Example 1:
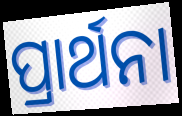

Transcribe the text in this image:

ପ୍ରାର୍ଥନା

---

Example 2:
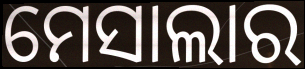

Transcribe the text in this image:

ମେସାଲାର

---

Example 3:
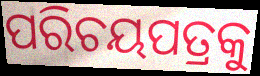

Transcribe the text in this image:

ପରିଚୟପତ୍ରକୁ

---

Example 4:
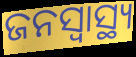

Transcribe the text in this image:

ଜନସ୍ବାସ୍ଥ୍ୟ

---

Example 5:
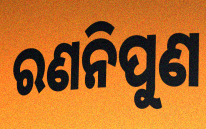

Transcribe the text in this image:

ରଣନିପୁଣ